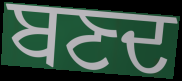
ਬਣਦ